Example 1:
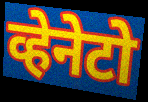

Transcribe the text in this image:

व्हेनेटो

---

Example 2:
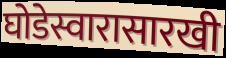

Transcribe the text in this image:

घोडेस्वारासारखी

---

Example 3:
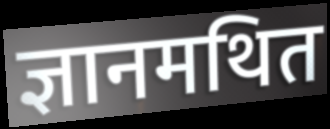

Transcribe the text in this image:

ज्ञानमथित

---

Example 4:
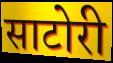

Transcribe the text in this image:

साटोरी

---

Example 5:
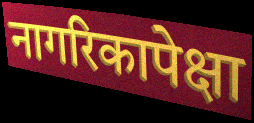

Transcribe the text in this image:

नागरिकापेक्षा